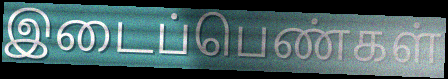
இடைப்பெண்கள்